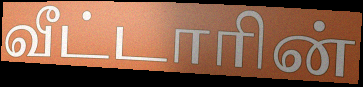
வீட்டாரின்